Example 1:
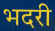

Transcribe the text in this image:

भदरी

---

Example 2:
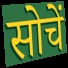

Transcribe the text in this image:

सोचें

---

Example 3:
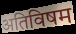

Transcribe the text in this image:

अतिविषम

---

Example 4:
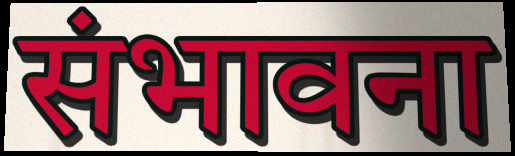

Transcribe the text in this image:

संभावना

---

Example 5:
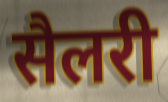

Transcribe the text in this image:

सैलरी